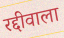
रद्दीवाला